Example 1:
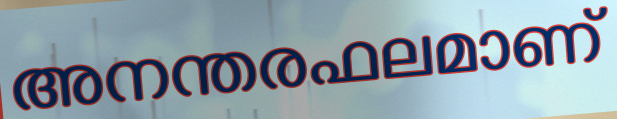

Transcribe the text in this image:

അനന്തരഫലമാണ്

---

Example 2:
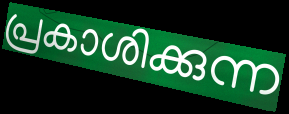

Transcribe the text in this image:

പ്രകാശിക്കുന്ന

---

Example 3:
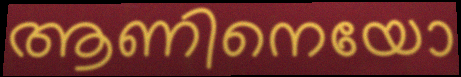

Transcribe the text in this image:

ആണിനെയോ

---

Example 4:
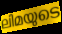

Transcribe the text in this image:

ലിമയുടെ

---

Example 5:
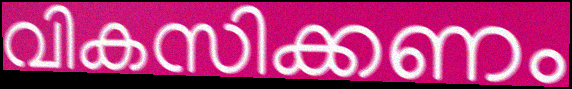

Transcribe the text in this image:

വികസിക്കണം